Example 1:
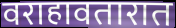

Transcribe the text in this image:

वराहावतारात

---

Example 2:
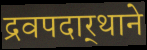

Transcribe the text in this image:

द्रवपदार्थाने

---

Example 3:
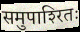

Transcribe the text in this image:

समुपाश्रितः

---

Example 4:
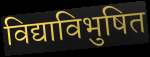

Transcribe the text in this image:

विद्याविभुषित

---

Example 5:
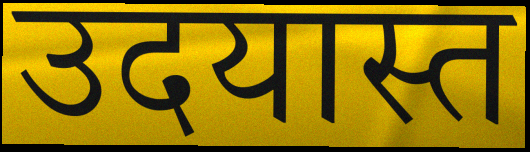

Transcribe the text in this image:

उदयास्त